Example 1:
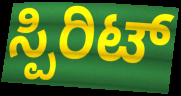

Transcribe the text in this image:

ಸ್ಪಿರಿಟ್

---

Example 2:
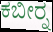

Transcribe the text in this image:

ಕಬೀರ್‍ನ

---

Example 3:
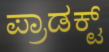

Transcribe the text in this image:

ಪ್ರಾಡಕ್ಟ್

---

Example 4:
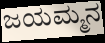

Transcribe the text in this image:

ಜಯಮ್ಮನ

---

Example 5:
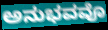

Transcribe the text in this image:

ಅನುಭವವೊ